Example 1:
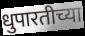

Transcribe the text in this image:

धुपारतीच्या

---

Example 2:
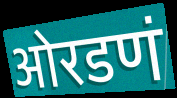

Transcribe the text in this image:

ओरडणं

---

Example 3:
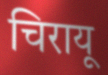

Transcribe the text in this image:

चिरायू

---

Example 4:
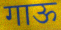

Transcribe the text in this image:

गाऊ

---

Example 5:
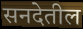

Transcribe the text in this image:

सनदेतील